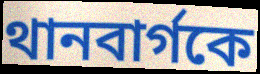
থানবার্গকে